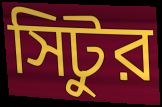
সিটুর